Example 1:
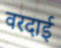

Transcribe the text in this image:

वरदाई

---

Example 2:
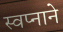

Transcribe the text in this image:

स्वप्नाने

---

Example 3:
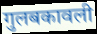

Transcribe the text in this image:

गुलबकावली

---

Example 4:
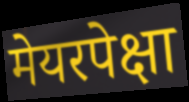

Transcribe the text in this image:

मेयरपेक्षा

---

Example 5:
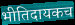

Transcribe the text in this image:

भीतिदायकच